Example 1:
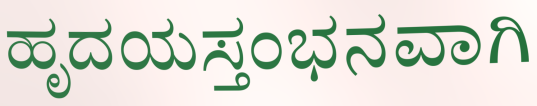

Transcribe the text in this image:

ಹೃದಯಸ್ತಂಭನವಾಗಿ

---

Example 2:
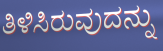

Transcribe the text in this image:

ತಿಳಿಸಿರುವುದನ್ನು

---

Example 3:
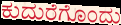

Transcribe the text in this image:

ಕುದುರೆಗೊಂದು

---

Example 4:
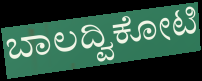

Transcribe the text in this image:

ಬಾಲದ್ವಿಕೋಟಿ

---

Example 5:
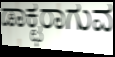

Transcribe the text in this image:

ಡಾಕ್ಟರಾಗುವ